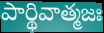
పార్థివాత్మజః